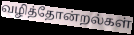
வழித்தோன்றல்கள்